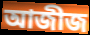
আজীজ